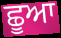
ਛੂਆ